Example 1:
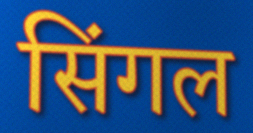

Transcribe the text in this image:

सिंगल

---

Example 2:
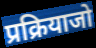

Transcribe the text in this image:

प्रक्रियाजो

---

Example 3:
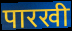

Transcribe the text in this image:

पारखी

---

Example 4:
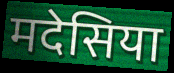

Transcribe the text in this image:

मदेसिया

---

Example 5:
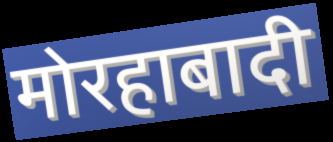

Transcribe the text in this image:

मोरहाबादी